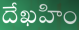
దేఖహిం